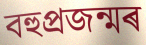
বহুপ্ৰজন্মৰ